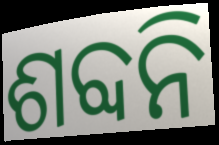
ଶବ୍ଦନି